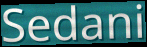
Sedani